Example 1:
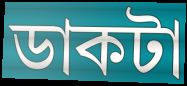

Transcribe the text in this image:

ডাকটা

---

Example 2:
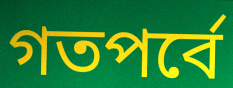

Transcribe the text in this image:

গতপর্বে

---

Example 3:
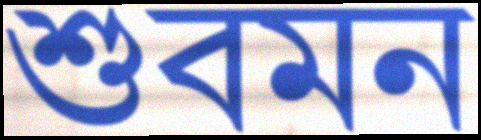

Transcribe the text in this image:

শুবমন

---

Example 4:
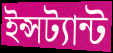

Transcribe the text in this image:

ইন্সট্যান্ট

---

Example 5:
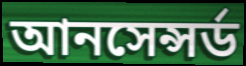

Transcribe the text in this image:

আনসেন্সর্ড